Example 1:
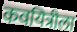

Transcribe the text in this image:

कवयित्रीला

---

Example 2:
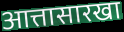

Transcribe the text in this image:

आत्तासारखा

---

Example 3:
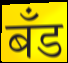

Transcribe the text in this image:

बॅंड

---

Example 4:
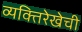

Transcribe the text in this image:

व्यक्तिरेखेची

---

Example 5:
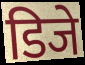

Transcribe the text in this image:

डिजे